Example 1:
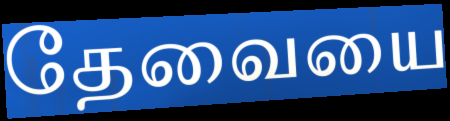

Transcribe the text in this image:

தேவையை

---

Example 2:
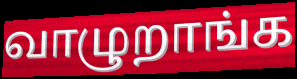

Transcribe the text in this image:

வாழுறாங்க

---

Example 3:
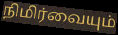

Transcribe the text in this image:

நிமிர்வையும்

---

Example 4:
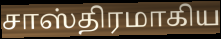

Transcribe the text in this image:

சாஸ்திரமாகிய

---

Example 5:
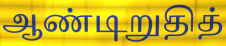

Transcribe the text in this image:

ஆண்டிறுதித்